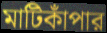
মাটিকাঁপার